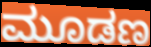
ಮೂಡಣ